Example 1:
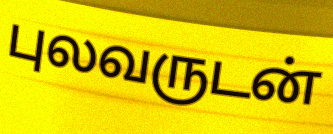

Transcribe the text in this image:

புலவருடன்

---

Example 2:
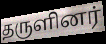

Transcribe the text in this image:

தருளினர்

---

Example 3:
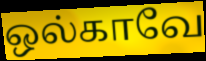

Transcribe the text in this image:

ஒல்காவே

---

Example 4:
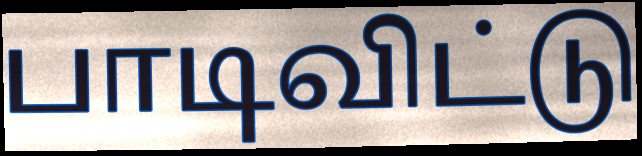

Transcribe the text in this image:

பாடிவிட்டு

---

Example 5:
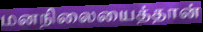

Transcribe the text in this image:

மனநிலையைத்தான்